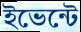
ইভেন্টে